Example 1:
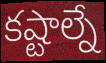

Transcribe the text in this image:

కష్టాల్నే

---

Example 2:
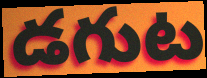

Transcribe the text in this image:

డగుట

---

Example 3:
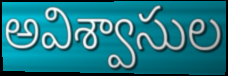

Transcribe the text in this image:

అవిశ్వాసుల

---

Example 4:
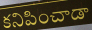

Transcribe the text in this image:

కనిపించాడా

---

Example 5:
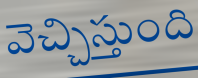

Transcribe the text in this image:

వెచ్చిస్తుంది